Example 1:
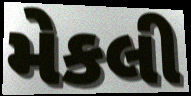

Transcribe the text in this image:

મેકલી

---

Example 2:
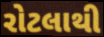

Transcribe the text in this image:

રોટલાથી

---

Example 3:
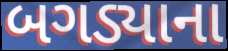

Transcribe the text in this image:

બગડ્યાના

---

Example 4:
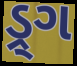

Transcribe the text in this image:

ડ્ર્ગ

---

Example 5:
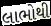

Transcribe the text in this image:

લાભોથી